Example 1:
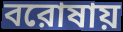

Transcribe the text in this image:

বরোষায়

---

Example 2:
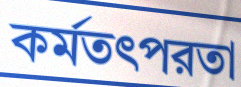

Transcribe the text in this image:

কর্মতৎপরতা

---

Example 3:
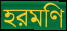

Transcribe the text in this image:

হরমণি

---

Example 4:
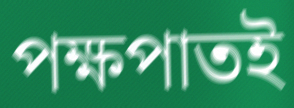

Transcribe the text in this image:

পক্ষপাতই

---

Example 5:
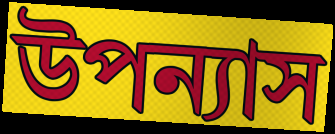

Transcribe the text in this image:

উপন্যাস